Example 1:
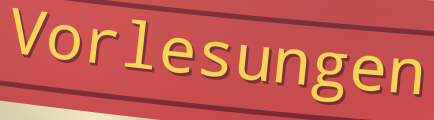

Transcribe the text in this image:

Vorlesungen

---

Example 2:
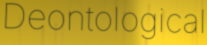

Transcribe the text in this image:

Deontological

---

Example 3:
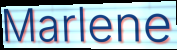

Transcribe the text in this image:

Marlene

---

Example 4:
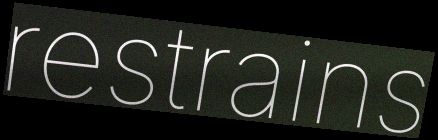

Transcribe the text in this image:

restrains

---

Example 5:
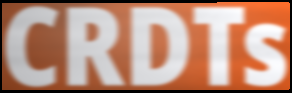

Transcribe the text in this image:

CRDTs